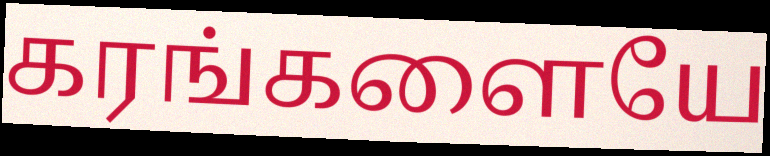
கரங்களையே